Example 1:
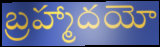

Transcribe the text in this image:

బ్రహ్మాదయో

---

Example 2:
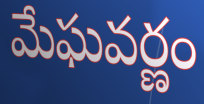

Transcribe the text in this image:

మేఘవర్ణం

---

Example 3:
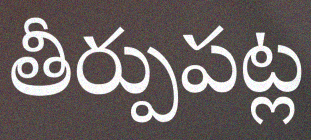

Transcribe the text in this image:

తీర్పుపట్ల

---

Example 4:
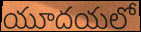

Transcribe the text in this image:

యూదయలో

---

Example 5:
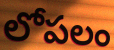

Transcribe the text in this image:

లోపలం